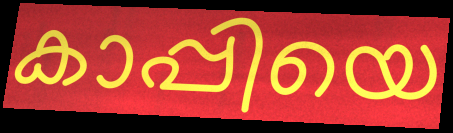
കാപ്പിയെ